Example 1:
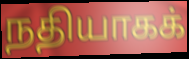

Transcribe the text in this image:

நதியாகக்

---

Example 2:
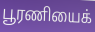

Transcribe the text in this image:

பூரணியைக்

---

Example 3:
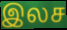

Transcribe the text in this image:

இலச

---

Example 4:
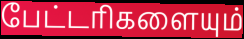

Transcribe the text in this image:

பேட்டரிகளையும்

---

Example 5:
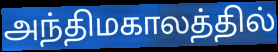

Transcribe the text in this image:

அந்திமகாலத்தில்